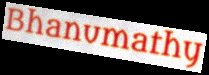
Bhanumathy